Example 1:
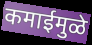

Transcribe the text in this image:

कमाईमुळे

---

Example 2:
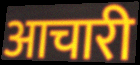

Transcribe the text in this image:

आचारी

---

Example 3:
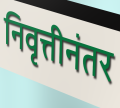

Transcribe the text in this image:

निवृत्तीनंतर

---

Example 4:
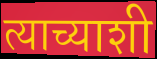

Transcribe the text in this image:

त्याच्याशी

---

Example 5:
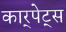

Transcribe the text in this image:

कार्पेट्स